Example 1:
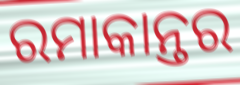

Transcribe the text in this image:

ରମାକାନ୍ତର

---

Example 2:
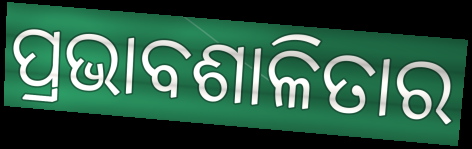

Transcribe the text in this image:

ପ୍ରଭାବଶାଳିତାର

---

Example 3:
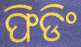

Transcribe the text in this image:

ଫିଡିଂ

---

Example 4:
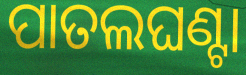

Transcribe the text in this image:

ପାତଲଘଣ୍ଟା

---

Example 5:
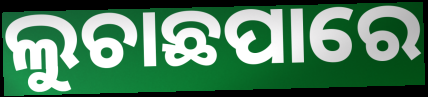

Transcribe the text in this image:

ଲୁଚାଛପାରେ